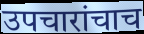
उपचारांचाच